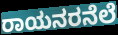
ರಾಯನರನೆಲೆ